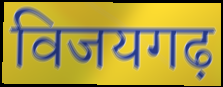
विजयगढ़